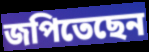
জপিতেছেন